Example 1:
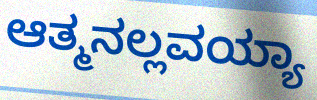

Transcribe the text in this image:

ಆತ್ಮನಲ್ಲವಯ್ಯಾ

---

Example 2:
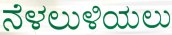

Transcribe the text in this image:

ನೆಳಲುಳಿಯಲು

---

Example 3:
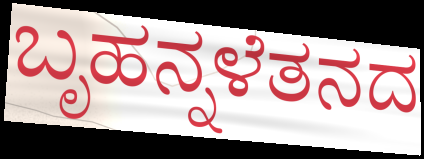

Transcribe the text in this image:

ಬೃಹನ್ನಳೆತನದ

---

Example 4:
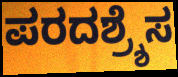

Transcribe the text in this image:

ಪರದಶ್ರ್ಶೆಸ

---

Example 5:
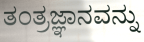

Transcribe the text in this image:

ತಂತ್ರಜ್ಞಾನವನ್ನು